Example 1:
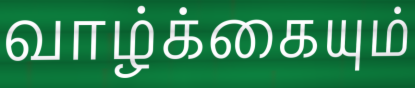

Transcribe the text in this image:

வாழ்க்கையும்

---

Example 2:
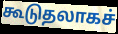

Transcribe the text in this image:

கூடுதலாகச்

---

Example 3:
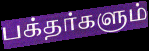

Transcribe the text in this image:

பக்தர்களும்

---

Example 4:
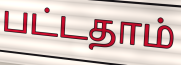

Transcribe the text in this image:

பட்டதாம்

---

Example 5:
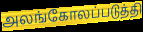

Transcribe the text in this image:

அலங்கோலப்படுத்தி